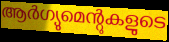
ആർഗ്യുമെന്റുകളുടെ